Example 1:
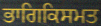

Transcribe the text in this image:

ਭਾਗਿਕਿਸਮਤ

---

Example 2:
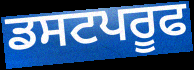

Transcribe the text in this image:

ਡਸਟਪਰੂਫ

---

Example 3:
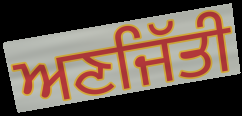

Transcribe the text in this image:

ਅਣਜਿੱਤੀ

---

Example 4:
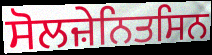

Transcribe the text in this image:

ਸੋਲਜ਼ੇਨਿਤਸਿਨ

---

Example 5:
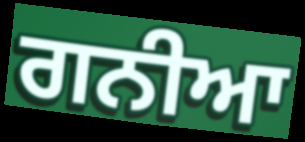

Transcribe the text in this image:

ਗਨੀਆ